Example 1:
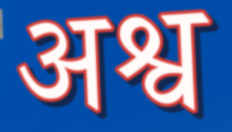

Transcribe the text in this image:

अश्व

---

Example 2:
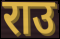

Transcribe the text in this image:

राउ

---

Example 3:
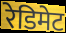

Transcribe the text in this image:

रेडिमेट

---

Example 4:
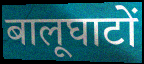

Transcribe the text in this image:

बालूघाटों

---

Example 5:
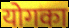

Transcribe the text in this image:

योगका